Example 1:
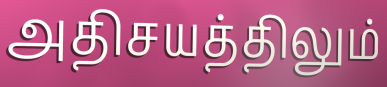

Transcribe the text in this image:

அதிசயத்திலும்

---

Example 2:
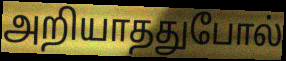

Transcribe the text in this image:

அறியாததுபோல்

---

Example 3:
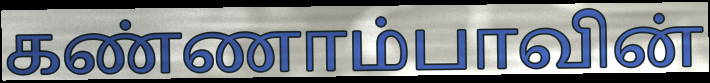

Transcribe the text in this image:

கண்ணாம்பாவின்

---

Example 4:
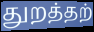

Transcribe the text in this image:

துறத்தற்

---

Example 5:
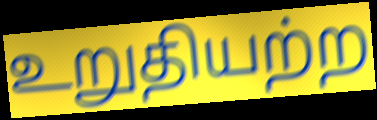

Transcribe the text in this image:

உறுதியற்ற